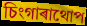
চিংগাৰাথোপ